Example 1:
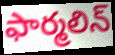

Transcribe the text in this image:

ఫార్మలిన్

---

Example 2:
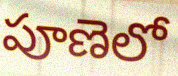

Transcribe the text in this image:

పూణెలో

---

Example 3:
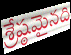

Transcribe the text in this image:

శ్రేష్ఠమైనది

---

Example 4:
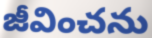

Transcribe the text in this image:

జీవించను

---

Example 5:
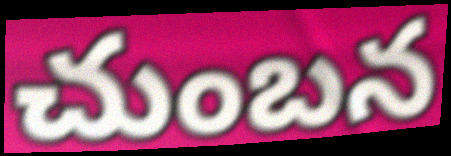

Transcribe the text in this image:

చుంబన